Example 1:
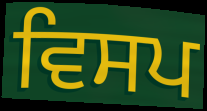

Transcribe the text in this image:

ਵਿਸਪ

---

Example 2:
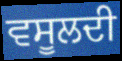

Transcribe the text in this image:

ਵਸੂਲਦੀ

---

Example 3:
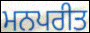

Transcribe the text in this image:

ਮਨਪਰੀਤ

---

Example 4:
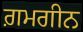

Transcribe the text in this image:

ਗ਼ਮਗੀਨ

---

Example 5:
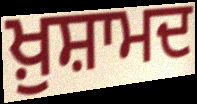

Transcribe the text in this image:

ਖ਼ੁਸ਼ਾਮਦ